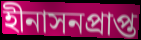
হীনাসনপ্রাপ্ত